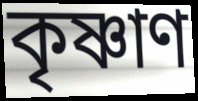
কৃষ্ণাণ